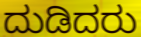
ದುಡಿದರು